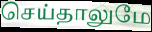
செய்தாலுமே